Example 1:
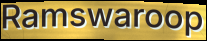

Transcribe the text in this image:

Ramswaroop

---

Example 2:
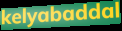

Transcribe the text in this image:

kelyabaddal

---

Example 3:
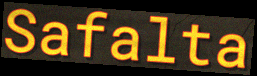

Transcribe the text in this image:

Safalta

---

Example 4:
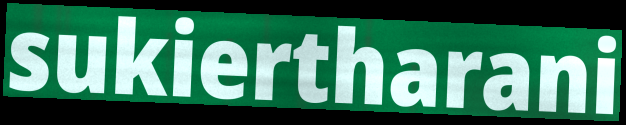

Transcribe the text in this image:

sukiertharani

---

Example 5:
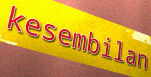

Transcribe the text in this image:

kesembilan